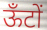
ऊँटों